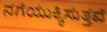
ನಗೆಯುಕ್ಕಿಸುತ್ತವೆ